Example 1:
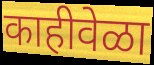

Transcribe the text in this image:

काहीवेळा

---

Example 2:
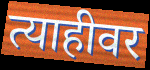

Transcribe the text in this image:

त्याहीवर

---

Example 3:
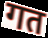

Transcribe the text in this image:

गत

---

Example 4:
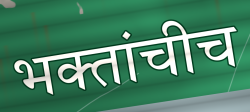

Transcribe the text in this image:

भक्तांचीच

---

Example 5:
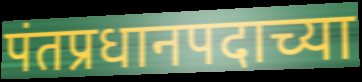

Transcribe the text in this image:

पंतप्रधानपदाच्या